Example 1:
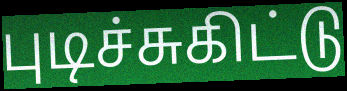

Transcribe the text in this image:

புடிச்சுகிட்டு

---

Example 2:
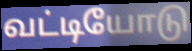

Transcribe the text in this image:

வட்டியோடு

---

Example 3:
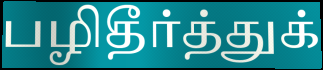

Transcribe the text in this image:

பழிதீர்த்துக்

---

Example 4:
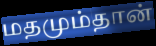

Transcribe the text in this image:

மதமும்தான்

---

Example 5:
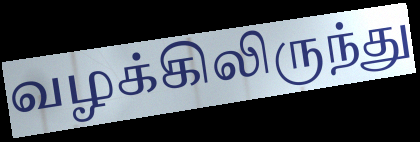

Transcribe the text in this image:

வழக்கிலிருந்து